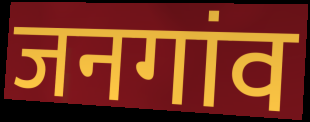
जनगांव